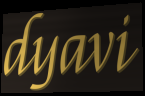
dyavi